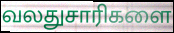
வலதுசாரிகளை